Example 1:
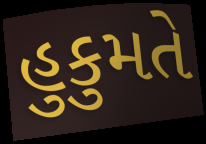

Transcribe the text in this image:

હુકુમતે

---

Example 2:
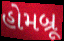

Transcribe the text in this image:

હોમબ્રૂ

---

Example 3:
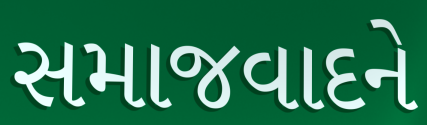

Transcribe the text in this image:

સમાજવાદને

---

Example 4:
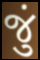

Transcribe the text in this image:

જું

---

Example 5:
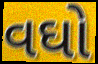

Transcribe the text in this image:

વઘો